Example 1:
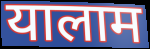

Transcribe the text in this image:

यालाम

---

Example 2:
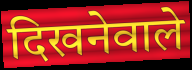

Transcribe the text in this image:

दिखनेवाले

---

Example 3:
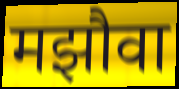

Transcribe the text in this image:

मझौवा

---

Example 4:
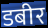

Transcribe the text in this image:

डबीर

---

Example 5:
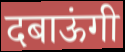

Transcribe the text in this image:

दबाऊंगी